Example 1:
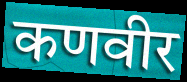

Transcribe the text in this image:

कणवीर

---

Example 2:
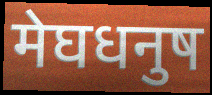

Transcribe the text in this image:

मेघधनुष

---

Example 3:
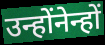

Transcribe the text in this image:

उन्होंनेन्हों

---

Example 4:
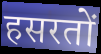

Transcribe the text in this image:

हसरतों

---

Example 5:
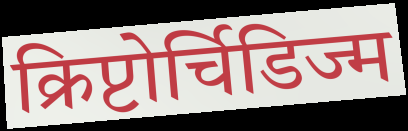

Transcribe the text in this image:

क्रिप्टोर्चिडिज्म